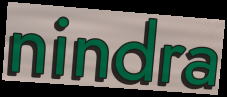
nindra